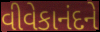
વીવેકાનંદને